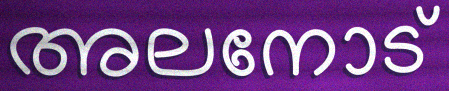
അലനോട്